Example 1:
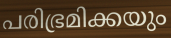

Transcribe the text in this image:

പരിഭ്രമിക്കയും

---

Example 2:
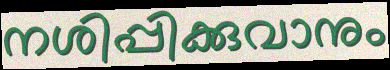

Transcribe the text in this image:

നശിപ്പിക്കുവാനും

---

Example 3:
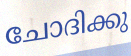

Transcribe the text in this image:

ചോദിക്കു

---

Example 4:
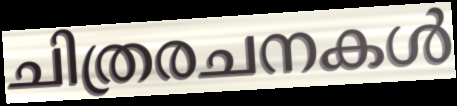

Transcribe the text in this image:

ചിത്രരചനകൾ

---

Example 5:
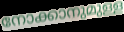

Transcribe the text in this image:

നോക്കാനുമുള്ള